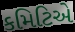
કમિટિએ